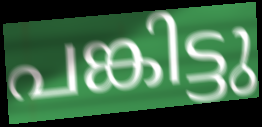
പങ്കിട്ടു